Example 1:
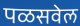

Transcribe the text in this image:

पळसवेल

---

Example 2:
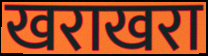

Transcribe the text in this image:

खराखरा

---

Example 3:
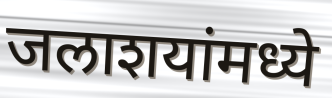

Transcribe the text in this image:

जलाशयांमध्ये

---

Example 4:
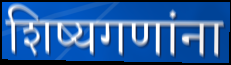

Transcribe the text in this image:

शिष्यगणांना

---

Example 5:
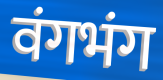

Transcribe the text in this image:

वंगभंग